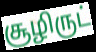
சூழிருட்